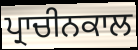
ਪ੍ਰਾਚੀਨਕਾਲ